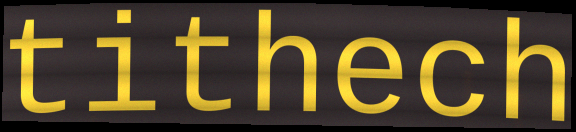
tithech